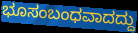
ಭೂಸಂಬಂಧವಾದದ್ದು